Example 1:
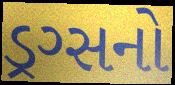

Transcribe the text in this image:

ડ્રગ્સનો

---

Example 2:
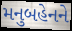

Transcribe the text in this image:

મનુબહેનને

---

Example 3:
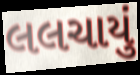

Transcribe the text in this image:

લલચાયું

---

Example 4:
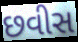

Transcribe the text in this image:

છવીસ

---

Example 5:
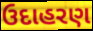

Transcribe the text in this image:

ઉદાહરણ